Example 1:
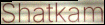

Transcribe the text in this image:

Shatkam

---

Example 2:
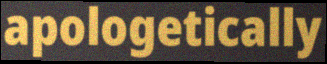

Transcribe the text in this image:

apologetically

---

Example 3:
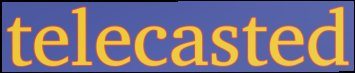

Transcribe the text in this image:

telecasted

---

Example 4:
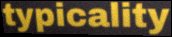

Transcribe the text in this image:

typicality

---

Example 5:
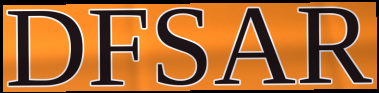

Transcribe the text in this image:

DFSAR